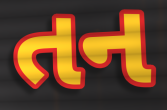
તન